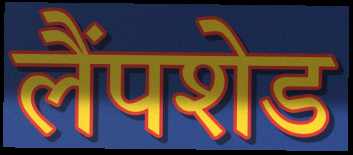
लैंपशेड